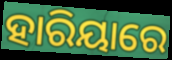
ହାରିୟାରେ